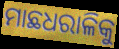
ମାଛଧରାଳିକୁ